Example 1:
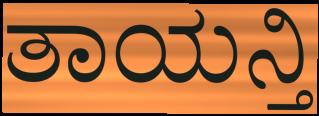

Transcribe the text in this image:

ತಾಯನ್ತಿ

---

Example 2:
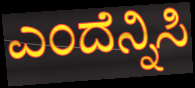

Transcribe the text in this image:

ಎಂದೆನ್ನಿಸಿ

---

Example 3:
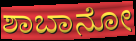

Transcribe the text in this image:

ಶಾಬಾನೋ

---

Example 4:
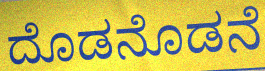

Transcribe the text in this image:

ದೊಡನೊಡನೆ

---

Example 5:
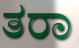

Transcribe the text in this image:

ತರಾ